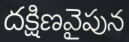
దక్షిణవైపున